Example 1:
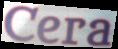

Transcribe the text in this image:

Cera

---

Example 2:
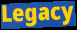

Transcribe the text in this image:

Legacy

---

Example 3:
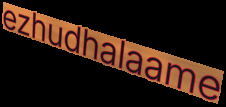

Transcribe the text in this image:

ezhudhalaame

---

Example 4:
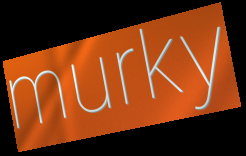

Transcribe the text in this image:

murky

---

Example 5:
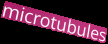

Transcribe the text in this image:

microtubules